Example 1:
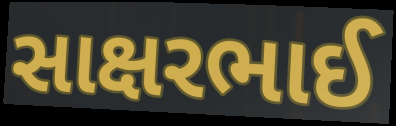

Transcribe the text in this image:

સાક્ષરભાઈ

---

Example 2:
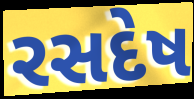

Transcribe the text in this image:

રસદેષ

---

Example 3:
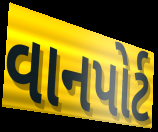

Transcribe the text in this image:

વાનપોર્ટ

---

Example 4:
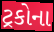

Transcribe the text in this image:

ટ્રકોના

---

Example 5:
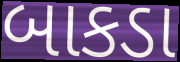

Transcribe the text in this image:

બાકડા